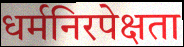
धर्मनिरपेक्षता